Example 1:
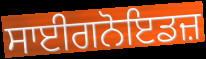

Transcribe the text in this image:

ਸਾਈਗਨੋਇਡਜ਼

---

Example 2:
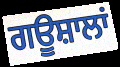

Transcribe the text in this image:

ਗਊਸ਼ਾਲਾਂ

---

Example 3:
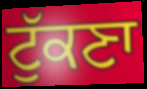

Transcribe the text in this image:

ਟੁੱਕਣਾ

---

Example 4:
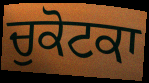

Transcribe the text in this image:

ਚੁਕੋਟਕਾ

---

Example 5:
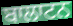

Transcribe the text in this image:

ਬਾਲਾਟਨ